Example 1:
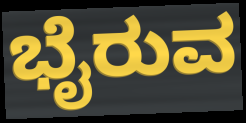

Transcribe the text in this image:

ಭೈರುವ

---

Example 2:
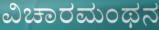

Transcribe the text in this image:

ವಿಚಾರಮಂಥನ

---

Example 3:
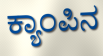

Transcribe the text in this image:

ಕ್ಯಾಂಪಿನ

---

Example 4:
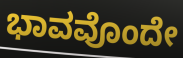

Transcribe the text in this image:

ಭಾವವೊಂದೇ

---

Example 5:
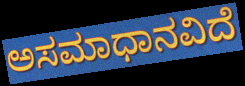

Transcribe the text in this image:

ಅಸಮಾಧಾನವಿದೆ